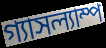
গ্যাসল্যাম্প